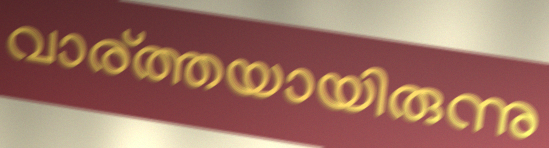
വാര്ത്തയായിരുന്നു